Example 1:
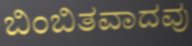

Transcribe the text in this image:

ಬಿಂಬಿತವಾದವು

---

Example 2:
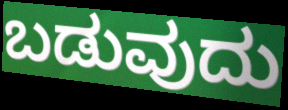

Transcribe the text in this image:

ಬಡುವುದು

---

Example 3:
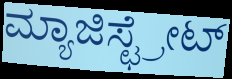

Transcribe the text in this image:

ಮ್ಯಾಜಿಸ್ಟ್ರೇಟ್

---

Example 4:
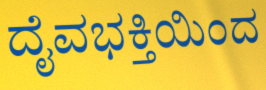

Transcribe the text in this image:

ದೈವಭಕ್ತಿಯಿಂದ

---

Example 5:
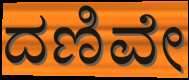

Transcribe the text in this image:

ದಣಿವೇ